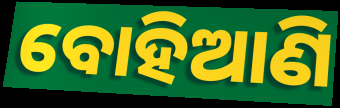
ବୋହିଆଣି